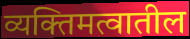
व्यक्तिमत्वातील